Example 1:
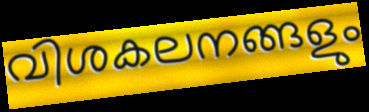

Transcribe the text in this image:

വിശകലനങ്ങളും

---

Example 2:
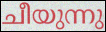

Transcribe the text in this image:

ചീയുന്നു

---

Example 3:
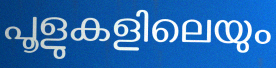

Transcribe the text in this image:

പൂളുകളിലെയും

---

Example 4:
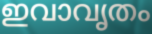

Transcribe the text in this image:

ഇവാവൃതം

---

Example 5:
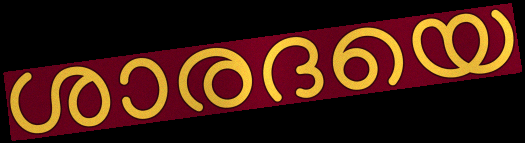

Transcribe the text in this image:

ശാരദയെ